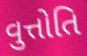
વુત્તોતિ